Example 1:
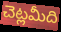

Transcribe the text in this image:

చెట్లమీది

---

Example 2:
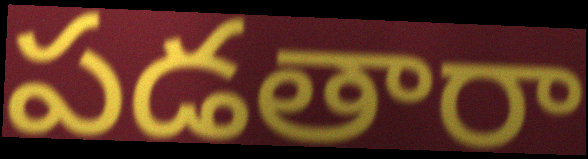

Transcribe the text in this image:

పడతారా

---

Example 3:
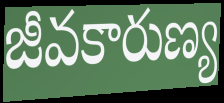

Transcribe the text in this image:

జీవకారుణ్య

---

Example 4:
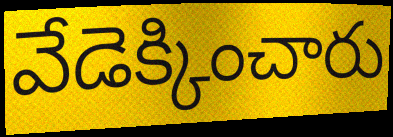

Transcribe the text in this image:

వేడెక్కించారు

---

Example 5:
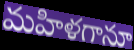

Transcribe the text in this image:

మహిళగానూ